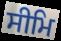
ਸੀਮਿ